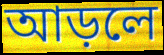
আড়লে